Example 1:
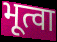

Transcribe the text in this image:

भूत्वा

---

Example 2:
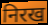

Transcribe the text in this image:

निरख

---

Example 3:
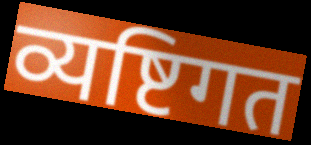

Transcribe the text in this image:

व्यष्टिगत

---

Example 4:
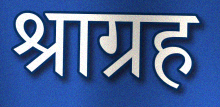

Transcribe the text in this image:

श्राग्रह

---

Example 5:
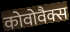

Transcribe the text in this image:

कोवोवैक्स